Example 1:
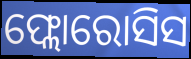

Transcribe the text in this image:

ଫ୍ଲୋରୋସିସ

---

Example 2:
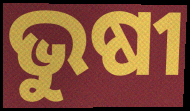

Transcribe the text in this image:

ଭୁଷୀ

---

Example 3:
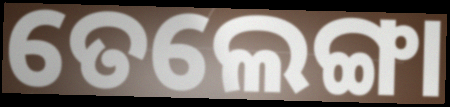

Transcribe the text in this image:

ତେଲେଙ୍ଗା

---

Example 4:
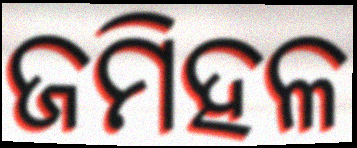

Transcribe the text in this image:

ଜମିହଳ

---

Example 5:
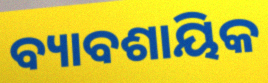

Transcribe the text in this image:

ବ୍ୟାବଶାୟିକ